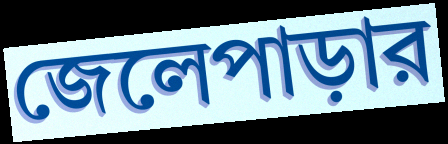
জেলেপাড়ার